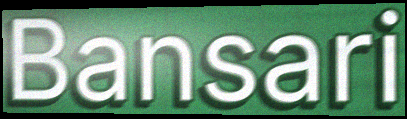
Bansari